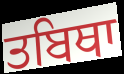
ਤਬਿਥਾ